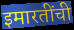
इमारतींची